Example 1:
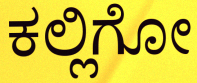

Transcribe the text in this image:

ಕಲ್ಲಿಗೋ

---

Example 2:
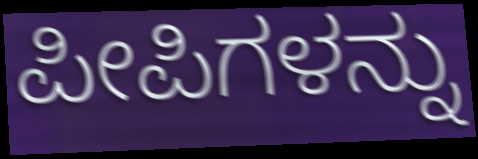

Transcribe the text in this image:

ಪೀಪಿಗಳನ್ನು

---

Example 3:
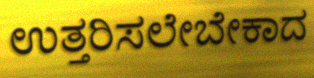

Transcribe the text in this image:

ಉತ್ತರಿಸಲೇಬೇಕಾದ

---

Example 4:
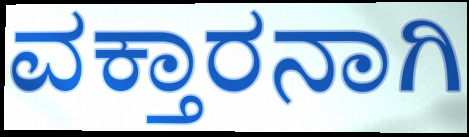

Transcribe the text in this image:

ವಕ್ತಾರನಾಗಿ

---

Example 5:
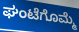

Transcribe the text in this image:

ಘಂಟೆಗೊಮ್ಮೆ